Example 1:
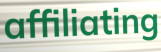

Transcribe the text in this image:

affiliating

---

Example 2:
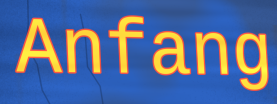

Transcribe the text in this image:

Anfang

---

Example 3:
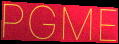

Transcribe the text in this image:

PGME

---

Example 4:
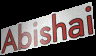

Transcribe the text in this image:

Abishai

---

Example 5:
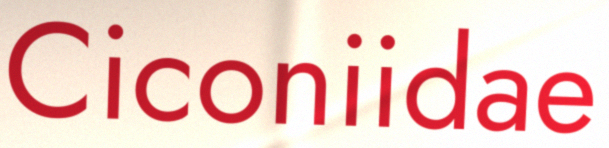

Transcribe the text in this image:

Ciconiidae